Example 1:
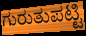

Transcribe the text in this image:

ಗುರುತುಪಟ್ಟಿ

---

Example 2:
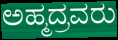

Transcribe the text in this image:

ಅಹ್ಮದ್ರವರು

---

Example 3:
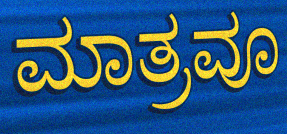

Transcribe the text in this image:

ಮಾತ್ರವೂ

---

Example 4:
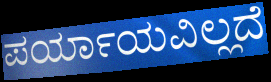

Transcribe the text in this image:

ಪರ್ಯಾಯವಿಲ್ಲದೆ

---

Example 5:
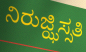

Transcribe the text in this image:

ನಿರುಜ್ಝಿಸ್ಸತಿ